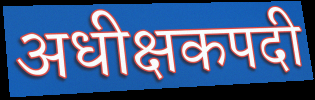
अधीक्षकपदी